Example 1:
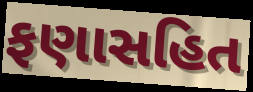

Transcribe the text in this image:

ફણાસહિત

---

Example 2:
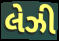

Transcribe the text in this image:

લેઝી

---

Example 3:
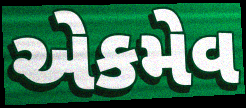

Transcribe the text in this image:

એકમેવ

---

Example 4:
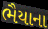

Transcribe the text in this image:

ભૈયાના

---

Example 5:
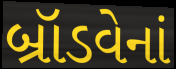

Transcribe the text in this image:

બ્રૉડવેનાં